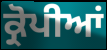
ਕ੍ਰੋਪੀਆਂ